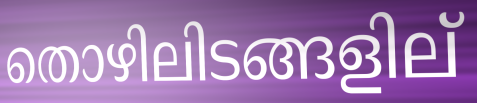
തൊഴിലിടങ്ങളില്